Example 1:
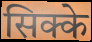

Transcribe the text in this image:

सिक्के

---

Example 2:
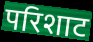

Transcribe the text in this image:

परिशाट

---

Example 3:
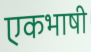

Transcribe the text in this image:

एकभाषी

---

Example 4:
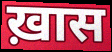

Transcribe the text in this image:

ख़ास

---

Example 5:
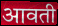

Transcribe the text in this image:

आवती